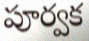
పూర్వక